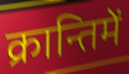
क्रान्तिमें